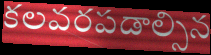
కలవరపడాల్సిన